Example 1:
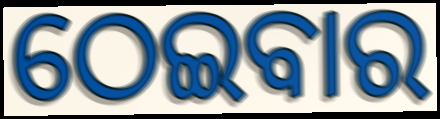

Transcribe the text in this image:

ଠେଇବାର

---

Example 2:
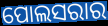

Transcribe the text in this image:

ପୋଲସରାର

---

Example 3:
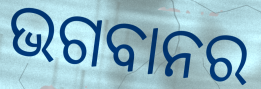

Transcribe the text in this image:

ଭଗବାନର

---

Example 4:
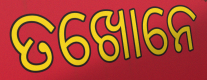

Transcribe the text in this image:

ତଖୋନେ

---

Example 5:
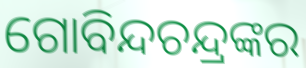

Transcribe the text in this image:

ଗୋବିନ୍ଦଚନ୍ଦ୍ରଙ୍କର